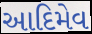
આદિમેવ